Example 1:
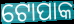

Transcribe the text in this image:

ଟୋପାକ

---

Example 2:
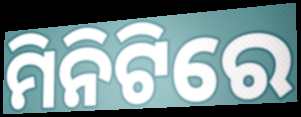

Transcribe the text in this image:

ମିନିଟିରେ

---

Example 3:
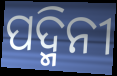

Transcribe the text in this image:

ପଦ୍ମିନୀ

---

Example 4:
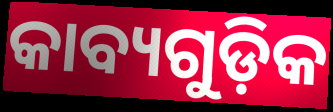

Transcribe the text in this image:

କାବ୍ୟଗୁଡ଼ିକ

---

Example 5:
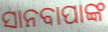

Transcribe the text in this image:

ସାନବାପାଙ୍କ